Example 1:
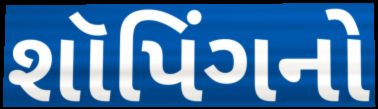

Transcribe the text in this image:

શૉપિંગનો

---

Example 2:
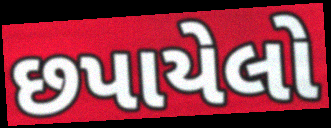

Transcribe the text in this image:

છપાયેલો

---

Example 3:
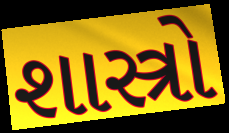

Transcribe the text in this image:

શાસ્ત્રો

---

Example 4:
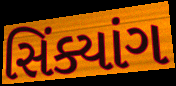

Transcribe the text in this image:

સિંક્યાંગ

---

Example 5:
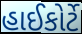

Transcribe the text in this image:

હાઈકોર્ટે